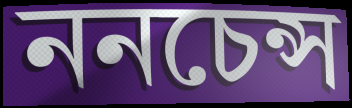
ননচেন্স